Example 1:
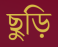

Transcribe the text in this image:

ছুড়ি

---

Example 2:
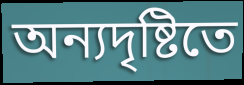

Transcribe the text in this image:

অন্যদৃষ্টিতে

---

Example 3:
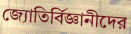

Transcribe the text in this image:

জ্যোতির্বিজ্ঞানীদের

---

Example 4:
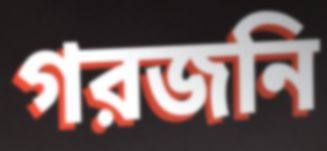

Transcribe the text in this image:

গরজনি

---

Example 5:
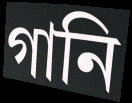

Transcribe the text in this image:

গানি